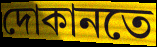
দোকানতে